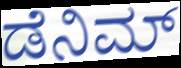
ಡೆನಿಮ್